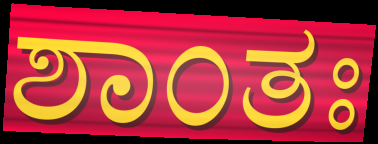
ಶಾಂತಃ